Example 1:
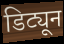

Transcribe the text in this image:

डिट्यून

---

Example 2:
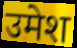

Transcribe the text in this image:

उमेश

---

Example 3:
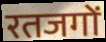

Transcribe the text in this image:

रतजगों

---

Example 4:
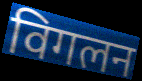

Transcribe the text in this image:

विगलन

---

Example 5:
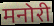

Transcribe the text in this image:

मनोरी